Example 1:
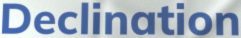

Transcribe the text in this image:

Declination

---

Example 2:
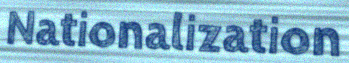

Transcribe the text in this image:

Nationalization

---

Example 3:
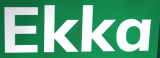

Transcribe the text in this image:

Ekka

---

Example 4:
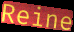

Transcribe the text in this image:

Reine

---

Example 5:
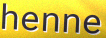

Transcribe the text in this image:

henne